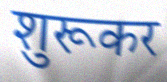
शुरूकर